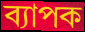
ব্যাপক